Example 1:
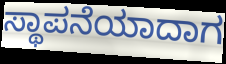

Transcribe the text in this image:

ಸ್ಥಾಪನೆಯಾದಾಗ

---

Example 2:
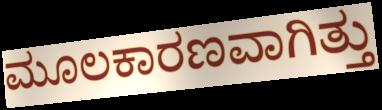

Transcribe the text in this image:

ಮೂಲಕಾರಣವಾಗಿತ್ತು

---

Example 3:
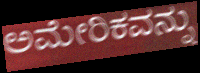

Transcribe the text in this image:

ಅಮೇರಿಕವನ್ನು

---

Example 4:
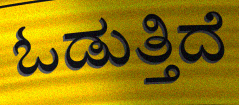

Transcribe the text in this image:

ಓಡುತ್ತಿದೆ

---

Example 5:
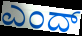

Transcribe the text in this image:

ಎಂದ್